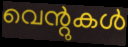
വെന്റുകൾ